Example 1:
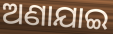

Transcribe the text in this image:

ଅଣାଯାଇ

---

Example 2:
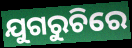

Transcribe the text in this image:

ଯୁଗରୁଚିରେ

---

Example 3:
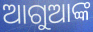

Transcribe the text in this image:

ଆଗୁଆଙ୍କ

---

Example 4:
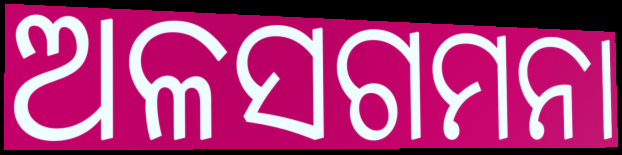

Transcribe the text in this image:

ଅଳସଗମନା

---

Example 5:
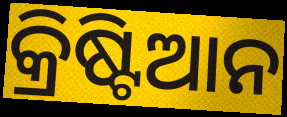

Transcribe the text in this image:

କ୍ରିଷ୍ଟିଆନ